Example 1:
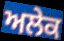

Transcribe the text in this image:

ਅਲੇਕ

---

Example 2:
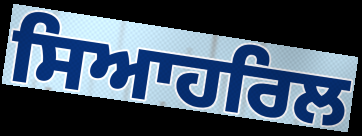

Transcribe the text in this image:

ਸਿਆਹਰਿਲ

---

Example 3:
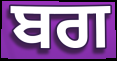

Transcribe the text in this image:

ਬਗ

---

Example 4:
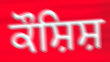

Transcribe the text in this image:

ਕੌਸ਼ਿਸ਼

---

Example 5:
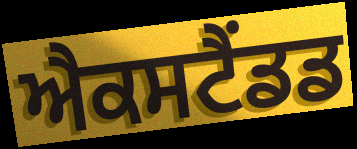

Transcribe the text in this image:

ਐਕਸਟੈਂਡਡ